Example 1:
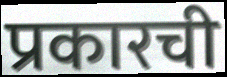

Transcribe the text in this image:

प्रकारची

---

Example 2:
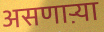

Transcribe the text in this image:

असणाऱ्‍या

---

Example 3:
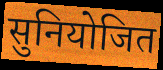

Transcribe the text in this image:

सुनियोजित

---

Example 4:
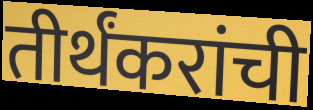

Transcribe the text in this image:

तीर्थंकरांची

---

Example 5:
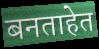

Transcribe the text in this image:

बनताहेत